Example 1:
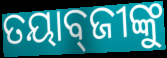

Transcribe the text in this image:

ତୟାବ୍‌ଜୀଙ୍କୁ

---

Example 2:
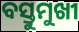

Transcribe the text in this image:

ବସ୍ତୁମୁଖୀ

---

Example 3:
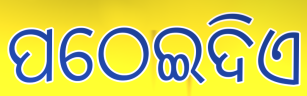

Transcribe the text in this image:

ପଠେଇଦିଏ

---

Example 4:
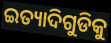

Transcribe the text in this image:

ଇତ୍ୟାଦିଗୁଡିକୁ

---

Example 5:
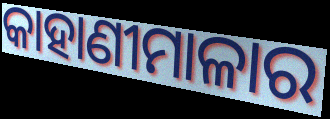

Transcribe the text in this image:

କାହାଣୀମାଳାର